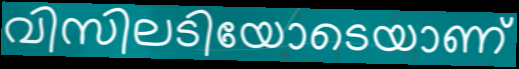
വിസിലടിയോടെയാണ്